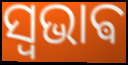
ସ୍ଵଭାଵ